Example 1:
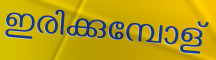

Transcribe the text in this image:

ഇരിക്കുമ്പോള്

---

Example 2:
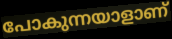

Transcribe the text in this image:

പോകുന്നയാളാണ്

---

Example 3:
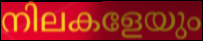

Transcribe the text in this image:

നിലകളേയും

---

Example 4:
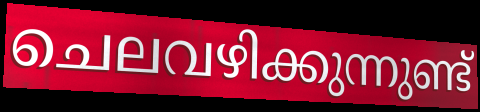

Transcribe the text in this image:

ചെലവഴിക്കുന്നുണ്ട്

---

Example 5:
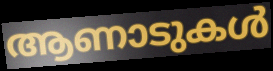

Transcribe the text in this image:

ആണാടുകൾ